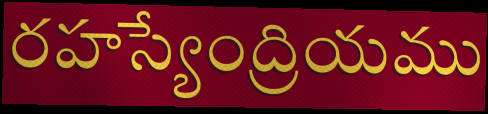
రహస్యేంద్రియము